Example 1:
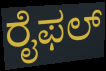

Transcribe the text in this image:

ರೈಫಲ್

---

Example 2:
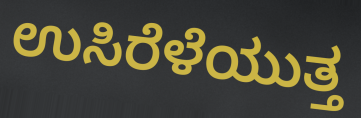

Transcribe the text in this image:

ಉಸಿರೆಳೆಯುತ್ತ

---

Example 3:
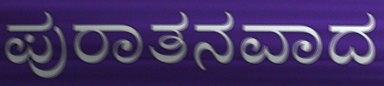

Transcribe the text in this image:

ಪುರಾತನವಾದ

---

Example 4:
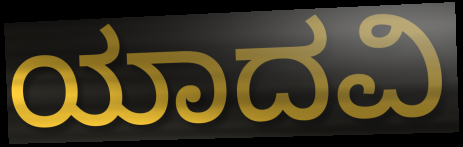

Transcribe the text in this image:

ಯಾದವಿ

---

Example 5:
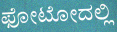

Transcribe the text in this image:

ಫೋಟೋದಲ್ಲಿ